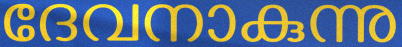
ദേവനാകുന്നു